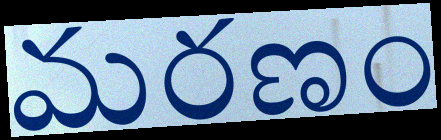
మరణం